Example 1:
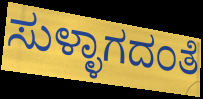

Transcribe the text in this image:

ಸುಳ್ಳಾಗದಂತೆ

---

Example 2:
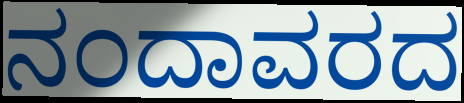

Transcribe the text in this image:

ನಂದಾವರದ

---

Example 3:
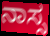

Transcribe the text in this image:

ನಾಸ್ಸ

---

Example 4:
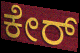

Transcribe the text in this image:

ಕೇರ್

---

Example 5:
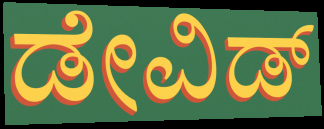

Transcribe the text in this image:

ಡೇವಿಡ್